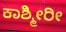
ಕಾಶ್ಮೀರೀ